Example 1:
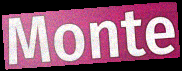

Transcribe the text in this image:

Monte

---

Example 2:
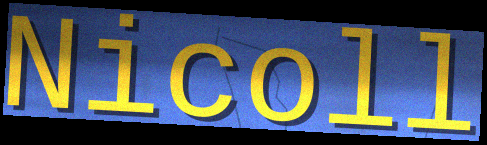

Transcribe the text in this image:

Nicoll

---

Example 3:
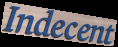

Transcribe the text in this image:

Indecent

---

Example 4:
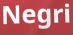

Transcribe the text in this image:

Negri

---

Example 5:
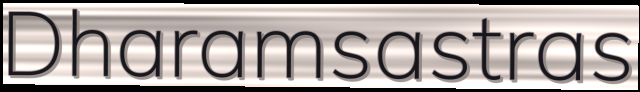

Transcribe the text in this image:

Dharamsastras